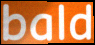
bald